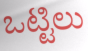
ಒಟ್ಟಿಲು